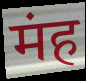
मंह